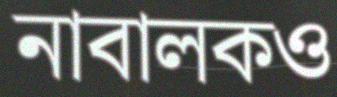
নাবালকও